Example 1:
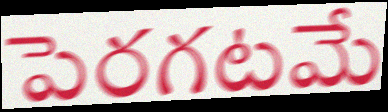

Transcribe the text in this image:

పెరగటమే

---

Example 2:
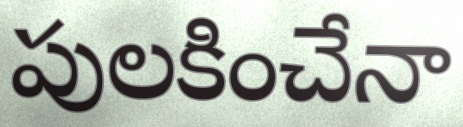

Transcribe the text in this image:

పులకించేనా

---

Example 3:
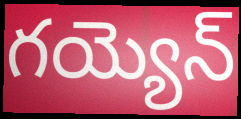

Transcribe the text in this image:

గయ్యెన్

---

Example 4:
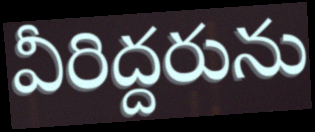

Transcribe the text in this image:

వీరిద్దరును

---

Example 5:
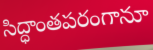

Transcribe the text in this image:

సిద్ధాంతపరంగానూ